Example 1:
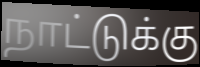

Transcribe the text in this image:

நாட்டுக்கு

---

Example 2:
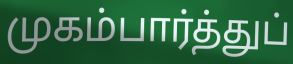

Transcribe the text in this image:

முகம்பார்த்துப்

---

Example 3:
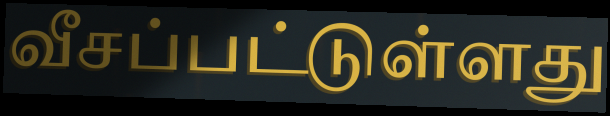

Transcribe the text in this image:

வீசப்பட்டுள்ளது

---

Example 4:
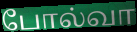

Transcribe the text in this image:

போல்வா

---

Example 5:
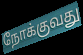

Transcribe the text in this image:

நோக்குவது